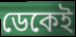
ডেকেই